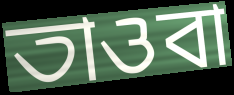
তাওবা